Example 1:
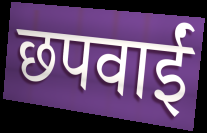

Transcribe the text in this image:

छपवाईं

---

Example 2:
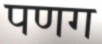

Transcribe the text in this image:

पणग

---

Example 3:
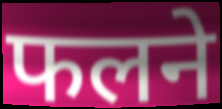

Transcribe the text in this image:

फलने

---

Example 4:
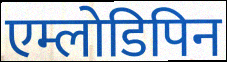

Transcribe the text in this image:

एम्लोडिपिन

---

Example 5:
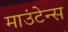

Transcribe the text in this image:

माउंटेन्स